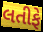
લતીફે